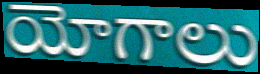
యోగాలు